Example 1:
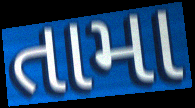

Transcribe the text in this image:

તામા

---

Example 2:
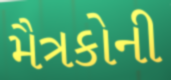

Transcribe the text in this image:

મૈત્રકોની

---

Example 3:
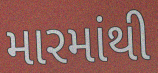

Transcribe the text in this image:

મારમાંથી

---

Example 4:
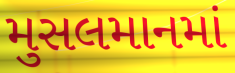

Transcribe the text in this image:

મુસલમાનમાં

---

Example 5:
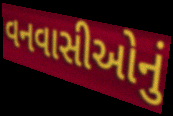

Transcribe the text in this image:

વનવાસીઓનું